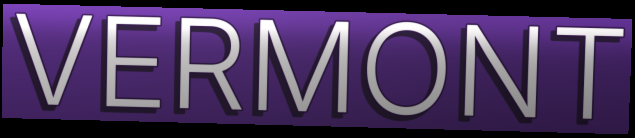
VERMONT